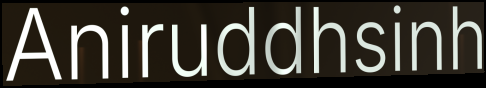
Aniruddhsinh